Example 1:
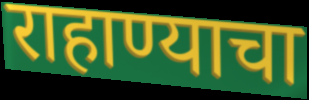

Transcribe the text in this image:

राहाण्याचा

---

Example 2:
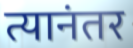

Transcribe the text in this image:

त्यानंतर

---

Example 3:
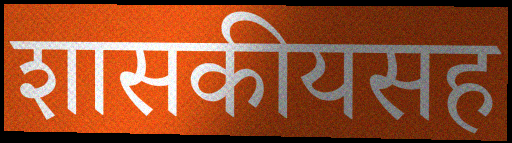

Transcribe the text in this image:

शासकीयसह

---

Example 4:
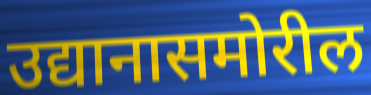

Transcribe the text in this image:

उद्यानासमोरील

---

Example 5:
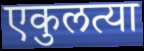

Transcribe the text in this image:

एकुलत्या